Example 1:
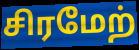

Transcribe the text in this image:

சிரமேற்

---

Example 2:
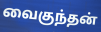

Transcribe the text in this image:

வைகுந்தன்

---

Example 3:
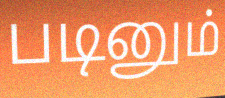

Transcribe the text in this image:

படினும்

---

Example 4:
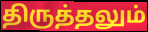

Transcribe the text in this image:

திருத்தலும்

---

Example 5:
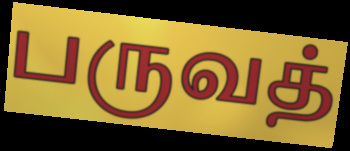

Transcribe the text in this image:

பருவத்